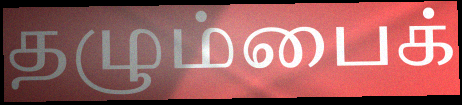
தழும்பைக்